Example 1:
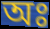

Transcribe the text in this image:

অঃ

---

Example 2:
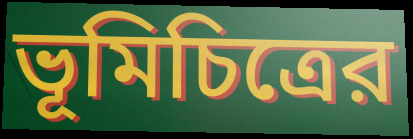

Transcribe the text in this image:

ভূমিচিত্রের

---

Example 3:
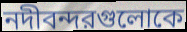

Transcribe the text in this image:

নদীবন্দরগুলোকে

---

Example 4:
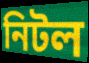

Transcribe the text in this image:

নিটল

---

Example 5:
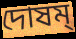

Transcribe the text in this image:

দোষম্